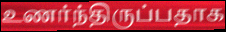
உணர்ந்திருப்பதாக